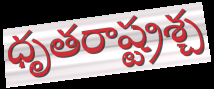
ధృతరాష్ట్రశ్చ